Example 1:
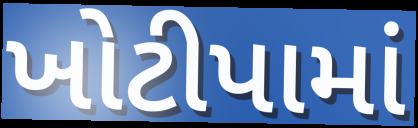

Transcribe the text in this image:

ખોટીપામાં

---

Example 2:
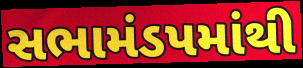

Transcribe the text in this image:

સભામંડપમાંથી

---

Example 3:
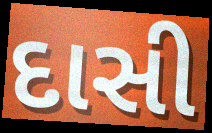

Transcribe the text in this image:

દાસી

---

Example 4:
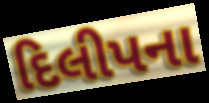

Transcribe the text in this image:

દિલીપના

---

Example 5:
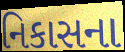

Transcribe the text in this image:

નિકાસના